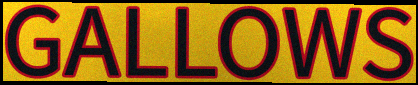
GALLOWS